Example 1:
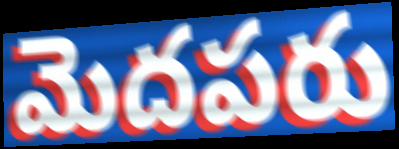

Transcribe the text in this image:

మెదపరు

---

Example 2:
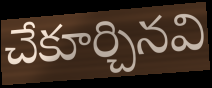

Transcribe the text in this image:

చేకూర్చినవి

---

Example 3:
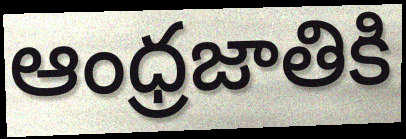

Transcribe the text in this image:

ఆంధ్రజాతికి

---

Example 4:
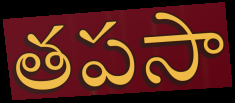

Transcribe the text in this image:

తపసా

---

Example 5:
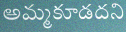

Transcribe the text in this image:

అమ్మకూడదని